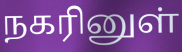
நகரினுள்